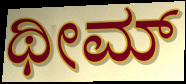
ಥೀಮ್